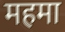
महमा